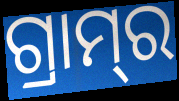
ଗ୍ରାମ୍‌ର